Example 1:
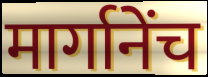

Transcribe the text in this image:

मार्गानेंच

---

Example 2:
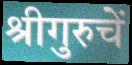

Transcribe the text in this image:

श्रीगुरुचें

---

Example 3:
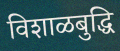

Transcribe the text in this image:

विशाळबुद्धि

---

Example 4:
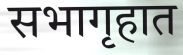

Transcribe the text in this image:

सभागृहात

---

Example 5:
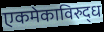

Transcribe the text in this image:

एकमेकाविरुद्ध